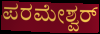
ಪರಮೇಶ್ವರ್